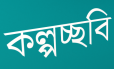
কল্পচ্ছবি